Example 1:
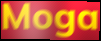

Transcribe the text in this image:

Moga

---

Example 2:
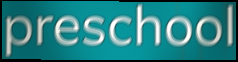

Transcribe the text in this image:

preschool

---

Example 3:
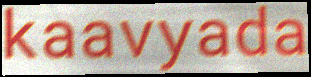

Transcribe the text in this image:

kaavyada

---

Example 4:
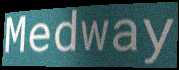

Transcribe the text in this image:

Medway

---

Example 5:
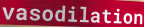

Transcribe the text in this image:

vasodilation